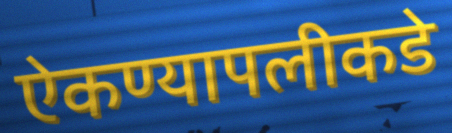
ऐकण्यापलीकडे